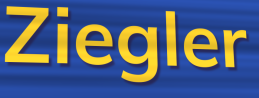
Ziegler